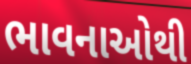
ભાવનાઓથી